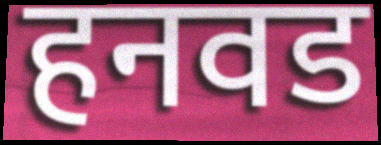
हनवड